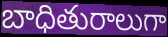
బాధితురాలుగా